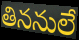
తిననులే